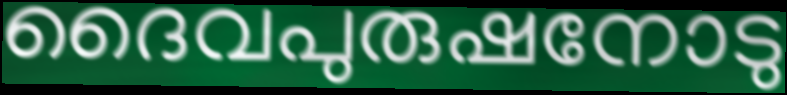
ദൈവപുരുഷനോടു